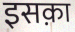
इसक़ा